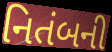
નિતંબની